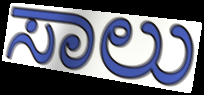
ಸಾಲು